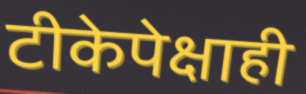
टीकेपेक्षाही